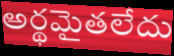
అర్థమైతలేదు